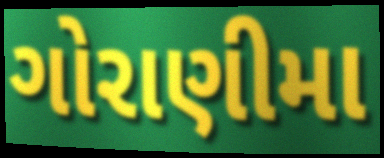
ગોરાણીમા